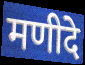
मणीदे